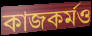
কাজকর্মও